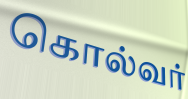
கொல்வர்